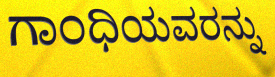
ಗಾಂಧಿಯವರನ್ನು